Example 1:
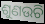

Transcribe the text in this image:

ଶୁଣଉଚି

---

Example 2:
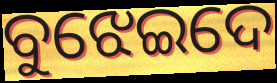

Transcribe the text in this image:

ବୁଝେଇଦେ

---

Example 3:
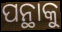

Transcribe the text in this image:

ପନ୍ଥାକୁ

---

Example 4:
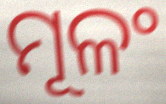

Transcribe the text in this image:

ମୂଳଂ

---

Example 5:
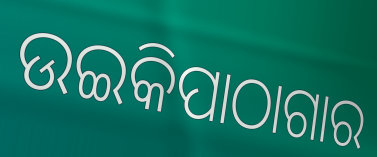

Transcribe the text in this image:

ଉଇକିପାଠାଗାର